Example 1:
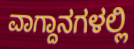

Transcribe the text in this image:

ವಾಗ್ದಾನಗಳಲ್ಲಿ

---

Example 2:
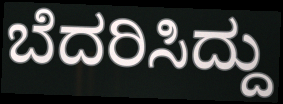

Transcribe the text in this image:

ಬೆದರಿಸಿದ್ದು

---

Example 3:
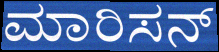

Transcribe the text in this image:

ಮಾರಿಸನ್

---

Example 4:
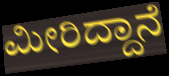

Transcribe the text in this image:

ಮೀರಿದ್ದಾನೆ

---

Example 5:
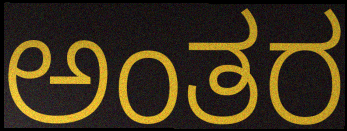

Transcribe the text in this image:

ಅಂತರ